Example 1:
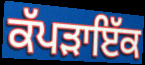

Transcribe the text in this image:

ਕੱਪੜਾਇੱਕ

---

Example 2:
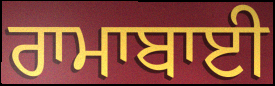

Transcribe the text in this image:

ਰਾਮਾਬਾਈ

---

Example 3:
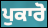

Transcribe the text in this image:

ਪੁਕਾਰੋ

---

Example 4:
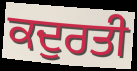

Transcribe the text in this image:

ਕਦੁਰਤੀ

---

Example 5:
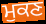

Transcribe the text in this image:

ਮੁਕਣ